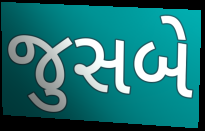
જુસબે